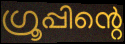
ഗ്രൂപ്പിന്റെ